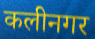
कलीनगर